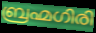
ബ്രഹ്മഗിരി